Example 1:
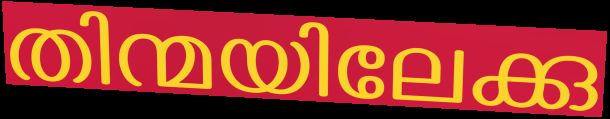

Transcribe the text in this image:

തിന്മയിലേക്കു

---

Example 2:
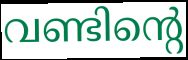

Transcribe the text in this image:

വണ്ടിന്റെ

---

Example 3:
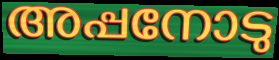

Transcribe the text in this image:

അപ്പനോടു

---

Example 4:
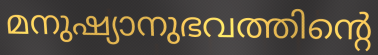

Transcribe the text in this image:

മനുഷ്യാനുഭവത്തിന്റെ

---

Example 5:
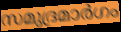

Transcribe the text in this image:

സമുദ്രമാർഗം